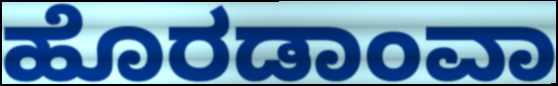
ಹೊರಡಾಂವಾ